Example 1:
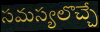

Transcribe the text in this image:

సమస్యలొచ్చే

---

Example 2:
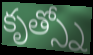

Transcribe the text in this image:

కృత్స్నో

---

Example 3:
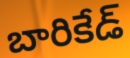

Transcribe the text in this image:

బారికేడ్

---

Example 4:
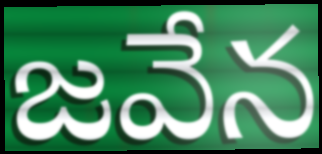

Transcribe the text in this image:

జవేన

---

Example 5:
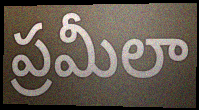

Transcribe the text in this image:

ప్రమీలా